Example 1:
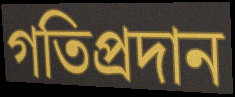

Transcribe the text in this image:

গতিপ্রদান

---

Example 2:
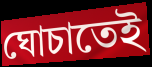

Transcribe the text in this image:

ঘোচাতেই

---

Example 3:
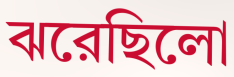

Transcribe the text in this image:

ঝরেছিলো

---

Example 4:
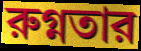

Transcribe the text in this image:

রুগ্নতার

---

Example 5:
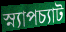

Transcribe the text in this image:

স্ন্যাপচ্যাট